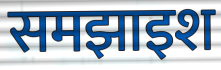
समझाइश